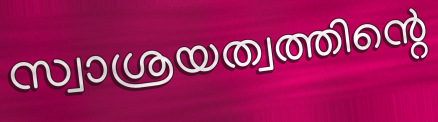
സ്വാശ്രയത്വത്തിന്റെ